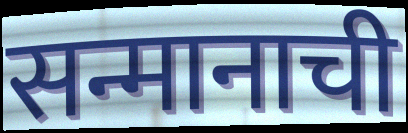
सन्मानाची